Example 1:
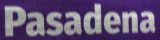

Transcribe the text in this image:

Pasadena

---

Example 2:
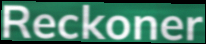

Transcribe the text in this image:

Reckoner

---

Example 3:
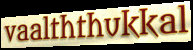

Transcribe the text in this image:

vaalththukkal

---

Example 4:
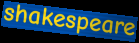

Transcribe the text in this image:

shakespeare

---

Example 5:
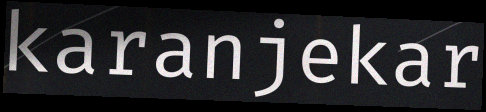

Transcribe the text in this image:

karanjekar